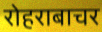
रोहराबाचर